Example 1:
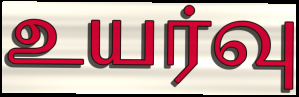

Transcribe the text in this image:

உயர்வு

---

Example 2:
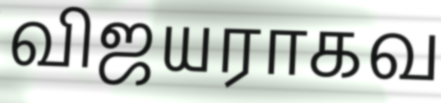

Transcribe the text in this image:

விஜயராகவ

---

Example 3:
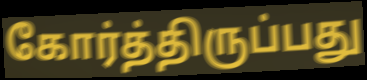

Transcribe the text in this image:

கோர்த்திருப்பது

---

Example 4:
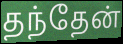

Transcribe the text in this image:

தந்தேன்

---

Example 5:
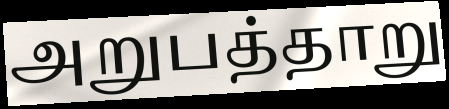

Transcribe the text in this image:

அறுபத்தாறு